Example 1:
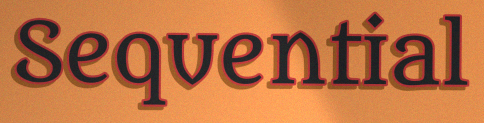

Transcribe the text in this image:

Sequential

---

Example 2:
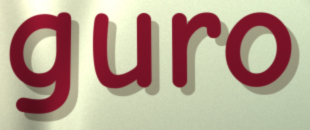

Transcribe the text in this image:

guro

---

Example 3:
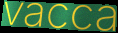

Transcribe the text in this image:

vacca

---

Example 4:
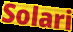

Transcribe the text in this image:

Solari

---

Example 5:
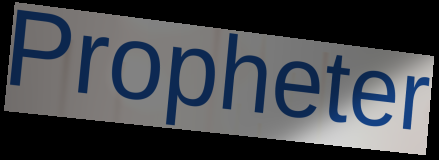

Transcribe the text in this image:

Propheter